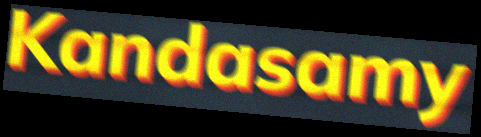
Kandasamy